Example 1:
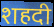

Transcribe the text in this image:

शहदी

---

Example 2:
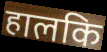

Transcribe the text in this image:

हालकि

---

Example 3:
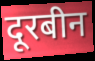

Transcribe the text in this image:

दूरबीन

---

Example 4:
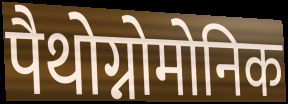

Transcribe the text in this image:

पैथोग्नोमोनिक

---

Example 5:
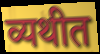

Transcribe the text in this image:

व्यथीत